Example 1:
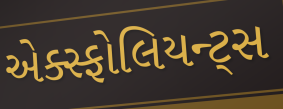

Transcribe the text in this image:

એક્સ્ફોલિયન્ટ્સ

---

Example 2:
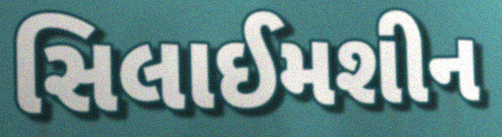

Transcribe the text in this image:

સિલાઈમશીન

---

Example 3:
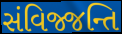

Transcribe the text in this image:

સંવિજ્જન્તિ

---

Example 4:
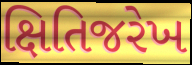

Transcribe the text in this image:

ક્ષિતિજરેખ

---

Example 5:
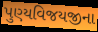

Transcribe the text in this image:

પુણ્યવિજયજીના